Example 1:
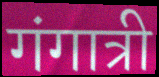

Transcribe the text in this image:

गंगात्री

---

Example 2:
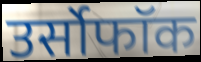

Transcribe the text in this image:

उर्सोफॉक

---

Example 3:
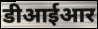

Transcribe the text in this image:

डीआईआर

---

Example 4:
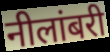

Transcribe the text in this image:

नीलांबरी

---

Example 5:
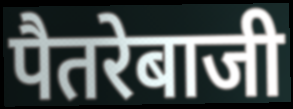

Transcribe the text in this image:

पैतरेबाजी